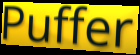
Puffer